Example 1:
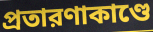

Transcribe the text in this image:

প্রতারণাকাণ্ডে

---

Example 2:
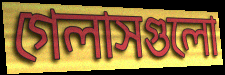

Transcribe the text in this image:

গেলাসগুলো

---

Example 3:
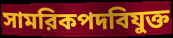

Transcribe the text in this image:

সামরিকপদবিযুক্ত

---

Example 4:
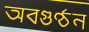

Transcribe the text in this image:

অবগুণ্ঠন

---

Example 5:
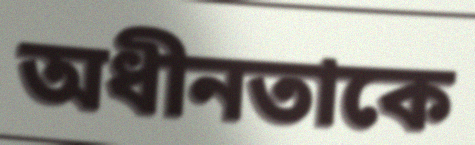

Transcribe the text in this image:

অধীনতাকে